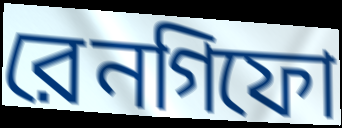
রেনগিফো